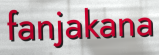
fanjakana